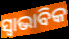
ସ୍ଵାଭାବିକ